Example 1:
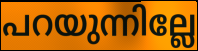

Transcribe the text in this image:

പറയുന്നില്ലേ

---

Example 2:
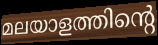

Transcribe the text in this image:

മലയാളത്തിന്റെ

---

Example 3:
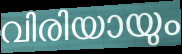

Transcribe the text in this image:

വിരിയായും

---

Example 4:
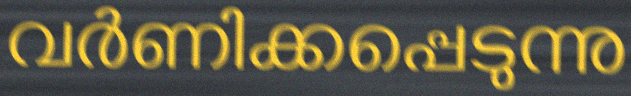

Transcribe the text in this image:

വർണിക്കപ്പെടുന്നു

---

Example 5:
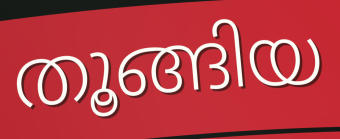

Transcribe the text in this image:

തൂങ്ങിയ